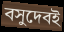
বসুদেবই